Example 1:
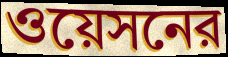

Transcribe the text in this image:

ওয়েসনের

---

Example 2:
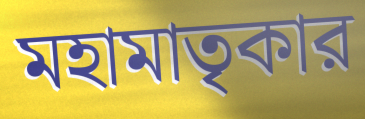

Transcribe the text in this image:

মহামাতৃকার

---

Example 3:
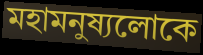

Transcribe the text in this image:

মহামনুষ্যলোকে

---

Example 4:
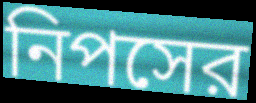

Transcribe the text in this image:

নিপসের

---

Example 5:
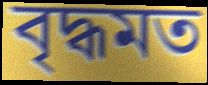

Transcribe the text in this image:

বৃদ্ধমত